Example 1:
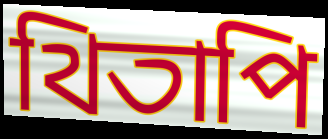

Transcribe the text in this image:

থিতাপি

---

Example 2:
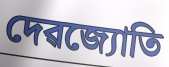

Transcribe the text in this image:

দেৱজ্যোতি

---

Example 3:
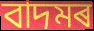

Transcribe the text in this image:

বাদমৰ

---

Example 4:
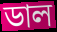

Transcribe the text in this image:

ডাল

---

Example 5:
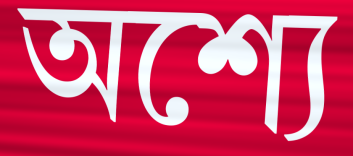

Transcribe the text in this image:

অশ্যে